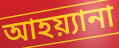
আহয়্যানা